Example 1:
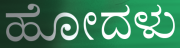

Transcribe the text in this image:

ಹೋದಳು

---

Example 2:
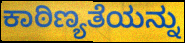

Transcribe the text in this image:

ಕಾಠಿಣ್ಯತೆಯನ್ನು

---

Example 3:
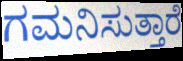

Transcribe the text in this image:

ಗಮನಿಸುತ್ತಾರೆ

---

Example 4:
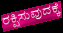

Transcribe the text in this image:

ರಕ್ಷಿಸುವುದಕ್ಕೆ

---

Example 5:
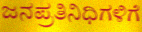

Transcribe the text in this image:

ಜನಪ್ರತಿನಿಧಿಗಳಿಗೆ